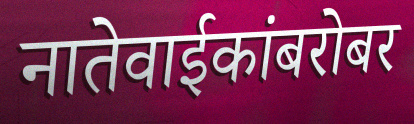
नातेवाईकांबरोबर